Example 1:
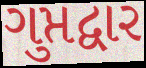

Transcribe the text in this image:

ગુપ્તદ્વાર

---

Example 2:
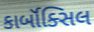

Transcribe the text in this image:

કાર્બૉક્સિલ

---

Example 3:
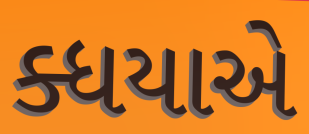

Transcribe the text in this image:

ક્ધયાએ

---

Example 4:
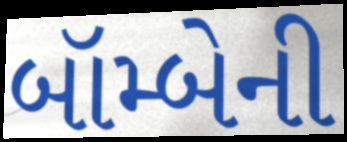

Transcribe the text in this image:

બૉમ્બેની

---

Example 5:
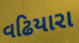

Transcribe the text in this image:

વઢિયારા